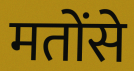
मतोंसे